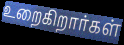
உறைகிறார்கள்